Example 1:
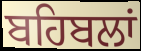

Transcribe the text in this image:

ਬਹਿਬਲਾਂ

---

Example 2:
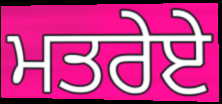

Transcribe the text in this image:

ਮਤਰੇਏ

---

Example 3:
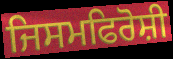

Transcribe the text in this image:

ਜਿਸਮਫਿਰੋਸ਼ੀ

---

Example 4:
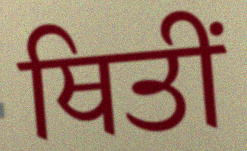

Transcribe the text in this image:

ਥਿਤੀਂ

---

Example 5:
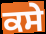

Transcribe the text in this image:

ਕਸੇ